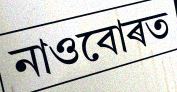
নাওবোৰত